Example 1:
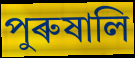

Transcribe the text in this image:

পুৰুষালি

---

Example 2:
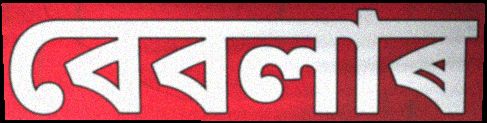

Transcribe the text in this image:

বেবলাৰ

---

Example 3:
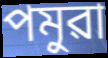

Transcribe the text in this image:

পমুৱা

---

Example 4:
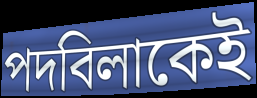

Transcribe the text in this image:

পদবিলাকেই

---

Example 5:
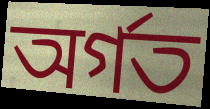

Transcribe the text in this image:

অৰ্গত